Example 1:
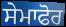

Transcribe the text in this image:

ਸੇਮਾਫੋਰ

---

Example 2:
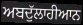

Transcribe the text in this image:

ਅਬਦੁੱਲਾਹੀਆਨ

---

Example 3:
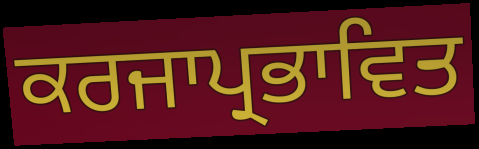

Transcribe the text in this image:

ਕਰਜਾਪ੍ਰਭਾਵਿਤ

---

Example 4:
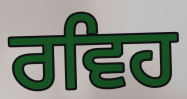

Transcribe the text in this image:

ਰਵਿਹ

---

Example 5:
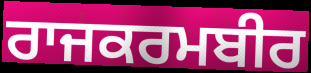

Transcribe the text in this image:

ਰਾਜਕਰਮਬੀਰ